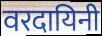
वरदायिनी